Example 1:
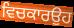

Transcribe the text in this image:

ਵਿਚਕਾਰਉਹ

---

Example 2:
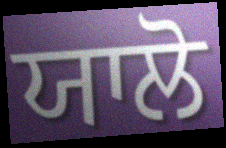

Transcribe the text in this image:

ਯਾਲੋ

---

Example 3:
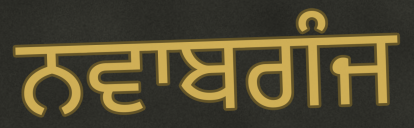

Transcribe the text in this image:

ਨਵਾਬਗੰਜ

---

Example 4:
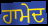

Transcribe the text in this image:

ਹਾਮੇਦ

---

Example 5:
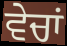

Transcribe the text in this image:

ਵੇਚਾਂ